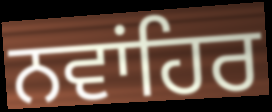
ਨਵਾਂਹਿਰ